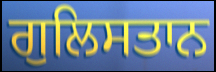
ਗੁਲਿਸਤਾਨ